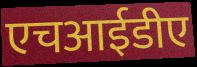
एचआईडीए